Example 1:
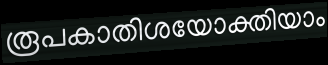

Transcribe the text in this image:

രൂപകാതിശയോക്തിയാം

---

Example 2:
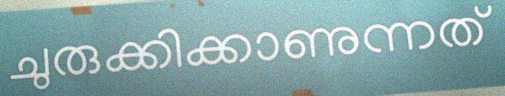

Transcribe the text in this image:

ചുരുക്കിക്കാണുന്നത്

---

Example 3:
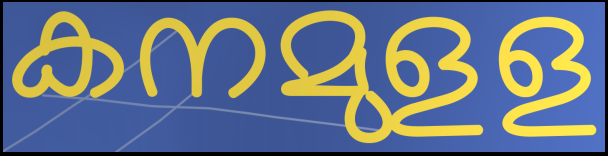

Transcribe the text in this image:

കനമുളള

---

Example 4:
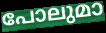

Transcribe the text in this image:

പോലുമാ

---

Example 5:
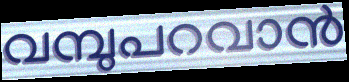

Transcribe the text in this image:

വമ്പുപറവാൻ